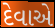
દેવાએ